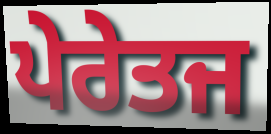
ਪੇਰੇਤਜ